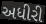
અધીરી